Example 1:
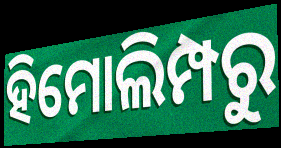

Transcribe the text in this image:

ହିମୋଲିମ୍ପରୁ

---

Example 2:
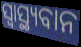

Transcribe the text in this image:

ସ୍ୱାସ୍ଥ୍ୟବାନ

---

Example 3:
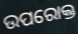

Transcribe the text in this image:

ଉପରୋକ୍ତ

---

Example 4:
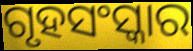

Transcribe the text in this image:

ଗୃହସଂସ୍କାର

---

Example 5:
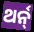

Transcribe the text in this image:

ଥର୍ନ୍